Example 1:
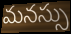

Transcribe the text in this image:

మనస్సు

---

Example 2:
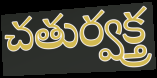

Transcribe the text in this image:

చతుర్వక్త్ర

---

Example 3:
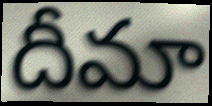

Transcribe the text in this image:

దీమా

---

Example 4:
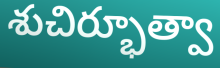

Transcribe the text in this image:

శుచిర్భూత్వా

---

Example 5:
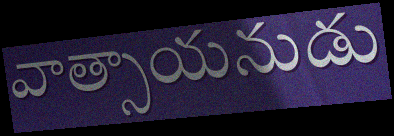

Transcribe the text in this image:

వాత్సాయనుడు